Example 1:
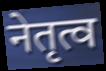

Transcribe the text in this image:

नेतृत्‍व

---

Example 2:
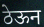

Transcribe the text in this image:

ठेऊन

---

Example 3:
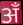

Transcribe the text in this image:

अँ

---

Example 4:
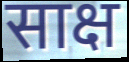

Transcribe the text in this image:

साक्ष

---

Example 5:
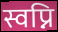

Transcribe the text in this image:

स्वप्नि